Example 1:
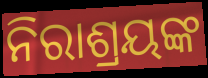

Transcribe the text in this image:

ନିରାଶ୍ରୟଙ୍କ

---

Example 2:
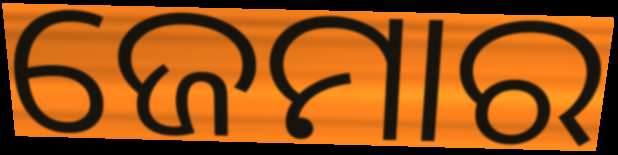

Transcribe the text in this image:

ଜେମାର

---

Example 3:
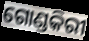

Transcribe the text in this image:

ଗୋଣ୍ଡକିରୀ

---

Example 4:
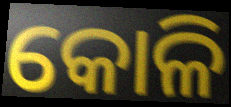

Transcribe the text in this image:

କୋଳି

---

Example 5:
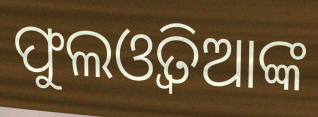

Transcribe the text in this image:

ଫୁଲଓ୍ୱତିଆଙ୍କ